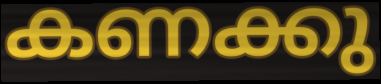
കണക്കു